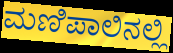
ಮಣಿಪಾಲಿನಲ್ಲಿ